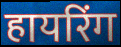
हायरिंग